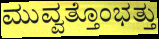
ಮುವ್ವತ್ತೊಂಭತ್ತು